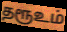
தரூஉம்